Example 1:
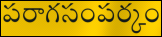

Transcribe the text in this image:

పరాగసంపర్కం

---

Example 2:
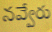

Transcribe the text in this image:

నవ్వేరు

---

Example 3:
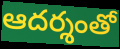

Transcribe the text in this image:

ఆదర్శంతో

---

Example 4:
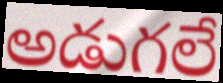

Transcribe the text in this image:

అడుగలే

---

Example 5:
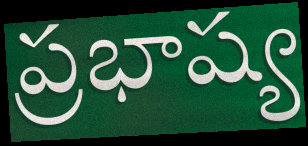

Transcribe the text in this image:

ప్రభాష్య